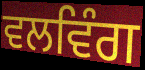
ਵਲਵਿੰਗ